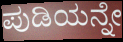
ಪುಡಿಯನ್ನೇ